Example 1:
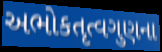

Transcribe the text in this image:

અભોકતૃત્વગુણના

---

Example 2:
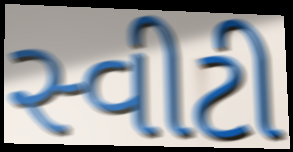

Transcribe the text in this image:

સ્વીટી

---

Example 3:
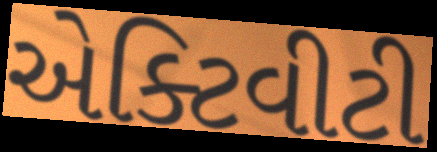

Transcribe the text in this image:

એક્ટિવીટી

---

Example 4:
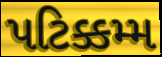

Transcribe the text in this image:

પટિક્કમ્મ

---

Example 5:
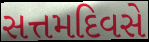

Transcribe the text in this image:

સત્તમદિવસે